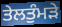
ਤੇਲਤੁੰਮੜੇ